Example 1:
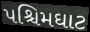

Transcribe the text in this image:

પશ્ચિમઘાટ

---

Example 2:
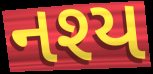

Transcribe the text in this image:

નશ્ય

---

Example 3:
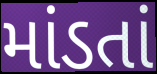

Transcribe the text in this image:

માંડતાં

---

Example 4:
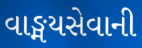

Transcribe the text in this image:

વાઙ્મયસેવાની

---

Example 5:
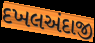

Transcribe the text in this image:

દખલઅંદાજી